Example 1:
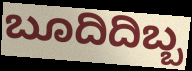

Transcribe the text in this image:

ಬೂದಿದಿಬ್ಬ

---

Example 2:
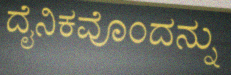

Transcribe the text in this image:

ದೈನಿಕವೊಂದನ್ನು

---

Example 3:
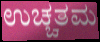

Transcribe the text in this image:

ಉಚ್ಚತಮ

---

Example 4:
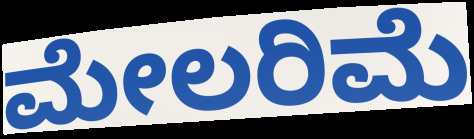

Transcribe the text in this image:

ಮೇಲರಿಮೆ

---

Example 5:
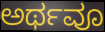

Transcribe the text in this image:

ಅರ್ಥವೂ